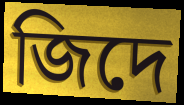
জিদে